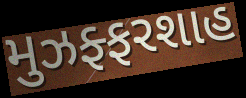
મુઝફ્ફરશાહ